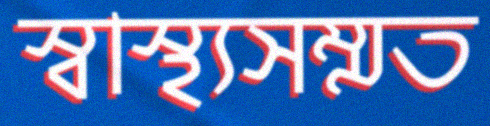
স্বাস্থ্যসম্মত